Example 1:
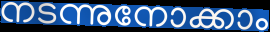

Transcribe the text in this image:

നടന്നുനോക്കാം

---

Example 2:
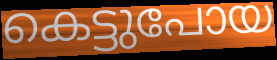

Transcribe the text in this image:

കെട്ടുപോയ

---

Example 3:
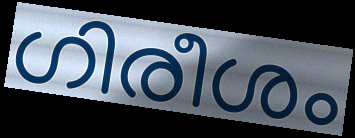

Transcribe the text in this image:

ഗിരീശം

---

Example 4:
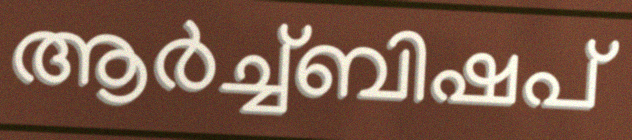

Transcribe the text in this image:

ആർച്ച്ബിഷപ്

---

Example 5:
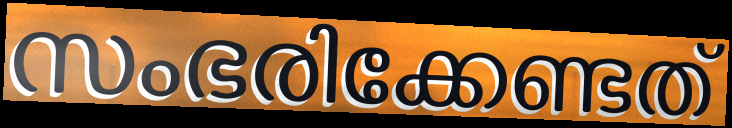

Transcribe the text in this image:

സംഭരിക്കേണ്ടത്